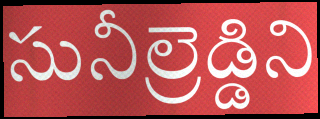
సునీల్రెడ్డిని